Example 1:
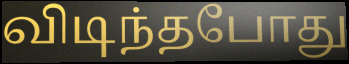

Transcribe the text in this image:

விடிந்தபோது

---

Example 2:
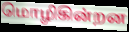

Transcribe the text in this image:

மொழிகின்றன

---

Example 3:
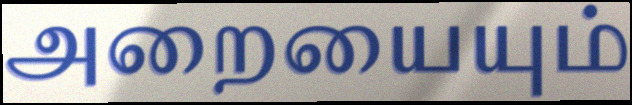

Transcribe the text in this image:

அறையையும்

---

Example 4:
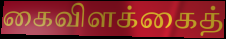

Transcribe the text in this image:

கைவிளக்கைத்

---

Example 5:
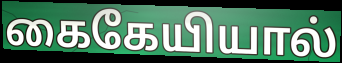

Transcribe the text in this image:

கைகேயியால்